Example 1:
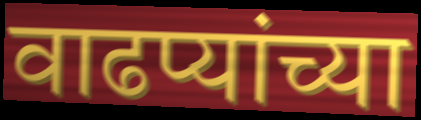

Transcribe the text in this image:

वाढप्यांच्या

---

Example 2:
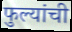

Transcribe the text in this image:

फुल्यांची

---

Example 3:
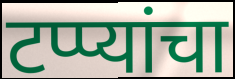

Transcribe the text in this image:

टप्प्यांचा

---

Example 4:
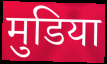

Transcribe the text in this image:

मुडिया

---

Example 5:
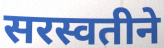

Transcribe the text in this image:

सरस्वतीने